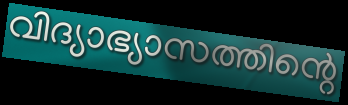
വിദ്യാഭ്യാസത്തിന്റെ